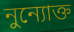
নুন্যোক্ত